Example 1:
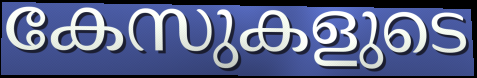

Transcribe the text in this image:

കേസുകളുടെ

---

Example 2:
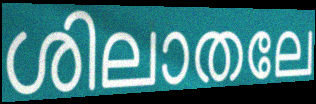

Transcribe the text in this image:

ശിലാതലേ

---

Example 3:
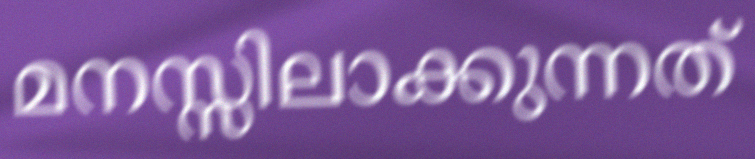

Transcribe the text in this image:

മനസ്സിലാക്കുന്നത്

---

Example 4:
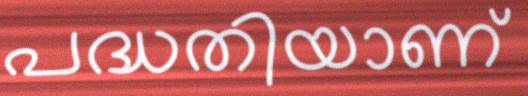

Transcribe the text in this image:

പദ്ധതിയാണ്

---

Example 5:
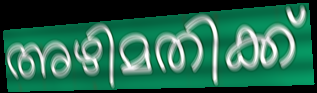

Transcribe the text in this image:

അഴിമതിക്ക്